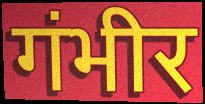
गंभीर